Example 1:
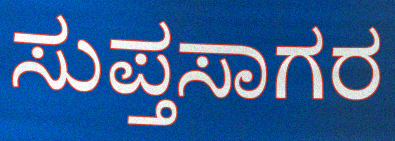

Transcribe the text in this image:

ಸುಪ್ತಸಾಗರ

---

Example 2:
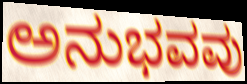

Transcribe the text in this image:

ಅನುಭವವು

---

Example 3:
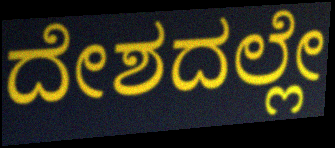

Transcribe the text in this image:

ದೇಶದಲ್ಲೇ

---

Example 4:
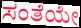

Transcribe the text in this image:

ಸಂತೆಯೇ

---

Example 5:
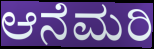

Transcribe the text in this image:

ಆನೆಮರಿ